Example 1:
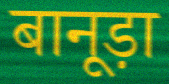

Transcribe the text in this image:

बानूड़ा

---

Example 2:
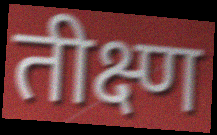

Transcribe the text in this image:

तीक्ष्ण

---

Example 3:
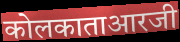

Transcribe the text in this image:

कोलकाताआरजी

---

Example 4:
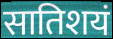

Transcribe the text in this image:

सातिशयं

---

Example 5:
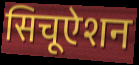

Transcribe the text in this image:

सिचूऐशन